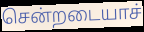
சென்றடையாச்